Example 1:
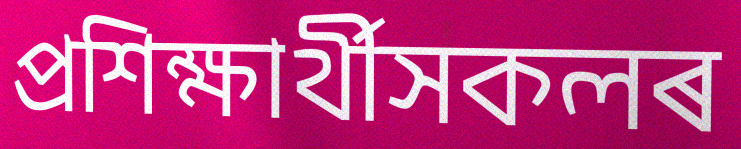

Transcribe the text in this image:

প্ৰশিক্ষাৰ্থীসকলৰ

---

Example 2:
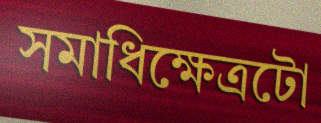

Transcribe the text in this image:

সমাধিক্ষেত্ৰটো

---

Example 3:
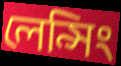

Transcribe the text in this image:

লেন্সিং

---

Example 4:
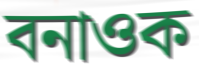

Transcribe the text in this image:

বনাওক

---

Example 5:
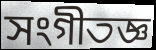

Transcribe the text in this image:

সংগীতজ্ঞ